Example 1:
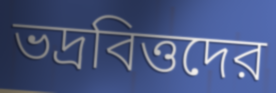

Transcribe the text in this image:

ভদ্রবিত্তদের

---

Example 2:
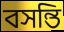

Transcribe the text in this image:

বসন্তি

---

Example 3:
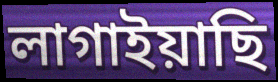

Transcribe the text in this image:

লাগাইয়াছি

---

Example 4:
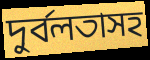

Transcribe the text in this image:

দুর্বলতাসহ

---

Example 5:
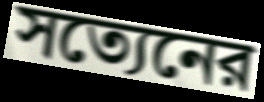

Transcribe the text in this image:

সত্যেনের